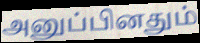
அனுப்பினதும்